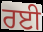
ਰਈ